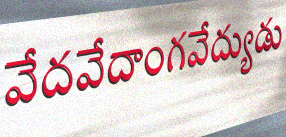
వేదవేదాంగవేద్యుడు